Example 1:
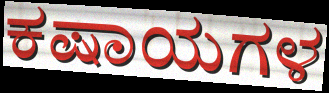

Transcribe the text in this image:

ಕಷಾಯಗಳ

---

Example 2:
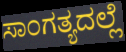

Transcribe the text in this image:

ಸಾಂಗತ್ಯದಲ್ಲೆ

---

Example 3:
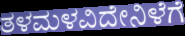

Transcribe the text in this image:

ತಳಮಳವಿದೇನಿಳೆಗೆ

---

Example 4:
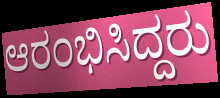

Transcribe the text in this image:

ಆರಂಭಿಸಿದ್ದರು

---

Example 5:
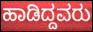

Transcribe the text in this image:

ಹಾಡಿದ್ದವರು